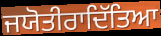
ਜਯੋਤੀਰਾਦਿੱਤਿਆ